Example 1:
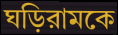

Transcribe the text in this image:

ঘড়িরামকে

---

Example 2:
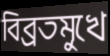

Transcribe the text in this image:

বিব্রতমুখে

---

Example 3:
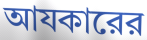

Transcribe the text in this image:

আযকারের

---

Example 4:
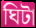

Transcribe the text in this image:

ঘিটা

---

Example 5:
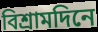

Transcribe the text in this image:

বিশ্রামদিনে